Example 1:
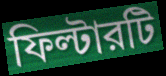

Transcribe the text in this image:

ফিল্টারটি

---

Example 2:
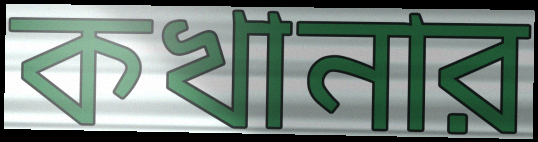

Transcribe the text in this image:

কখানার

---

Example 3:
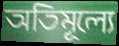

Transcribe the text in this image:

অতিমূল্যে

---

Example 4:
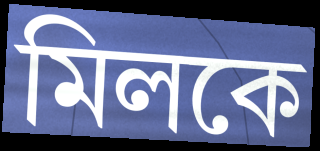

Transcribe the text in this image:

মিলকে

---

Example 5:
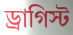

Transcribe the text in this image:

ড্রাগিস্ট